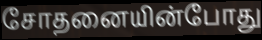
சோதனையின்போது